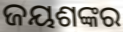
ଜୟଶଙ୍କର